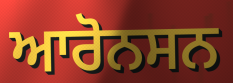
ਆਰੋਨਸਨ